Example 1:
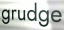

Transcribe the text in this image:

grudge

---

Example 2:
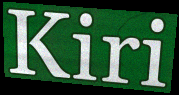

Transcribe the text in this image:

Kiri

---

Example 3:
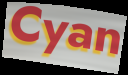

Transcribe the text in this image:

Cyan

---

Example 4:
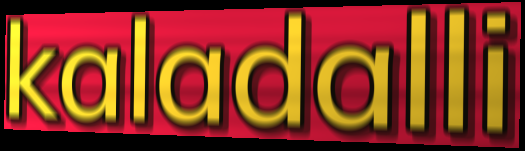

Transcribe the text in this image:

kaladalli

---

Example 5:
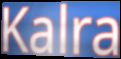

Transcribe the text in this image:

Kalra